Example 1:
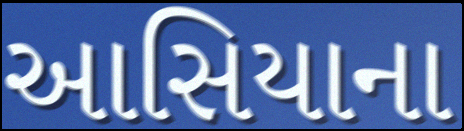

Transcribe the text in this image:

આસિયાના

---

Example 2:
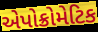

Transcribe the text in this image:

એપોક્રોમેટિક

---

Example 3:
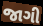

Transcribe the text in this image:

જાગી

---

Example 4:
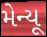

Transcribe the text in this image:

મેન્યૂ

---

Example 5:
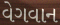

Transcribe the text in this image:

વેગવાન